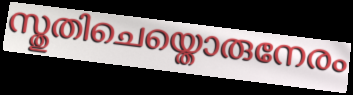
സ്തുതിചെയ്തൊരുനേരം